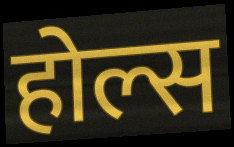
होल्स